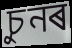
চুনৰ